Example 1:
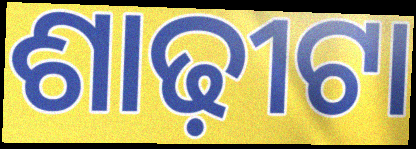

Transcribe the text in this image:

ଶାଢ଼ୀଟା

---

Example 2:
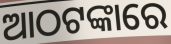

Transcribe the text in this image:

ଆଠଟଙ୍କାରେ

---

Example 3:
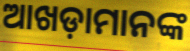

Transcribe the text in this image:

ଆଖଡ଼ାମାନଙ୍କ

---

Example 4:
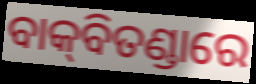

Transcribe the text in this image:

ବାକ୍‌ବିତଣ୍ଡାରେ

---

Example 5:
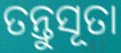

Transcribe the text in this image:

ତନ୍ତୁସୂତା